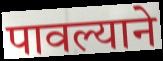
पावल्याने